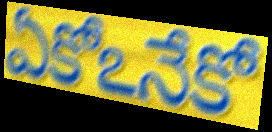
ఏకోఽనేకో